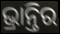
ଭ୍ରାନ୍ତିର